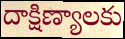
దాక్షిణ్యాలకు